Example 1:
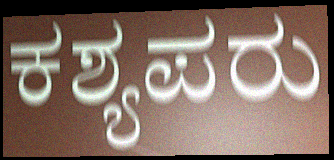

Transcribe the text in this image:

ಕಶ್ಯಪರು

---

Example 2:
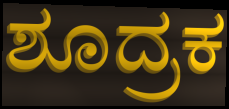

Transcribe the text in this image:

ಶೂದ್ರಕ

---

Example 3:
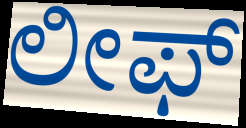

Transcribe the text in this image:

ಲೀಫ್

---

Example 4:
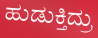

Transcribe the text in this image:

ಹುಡುಕ್ತಿದ್ರು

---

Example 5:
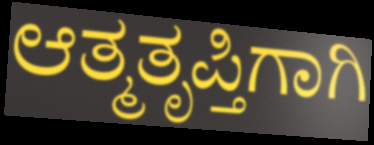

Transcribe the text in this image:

ಆತ್ಮತೃಪ್ತಿಗಾಗಿ